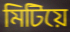
মিটিয়ে